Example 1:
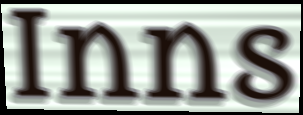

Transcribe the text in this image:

Inns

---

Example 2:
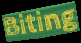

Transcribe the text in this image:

Biting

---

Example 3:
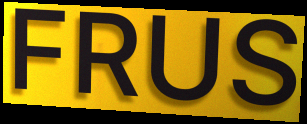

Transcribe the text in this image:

FRUS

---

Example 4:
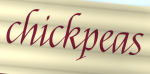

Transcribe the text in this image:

chickpeas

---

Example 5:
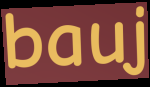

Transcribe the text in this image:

bauj